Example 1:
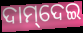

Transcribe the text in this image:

ଦାମ୍‌ଦେଇ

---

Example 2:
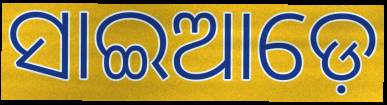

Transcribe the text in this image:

ସାଇଆଡ଼େ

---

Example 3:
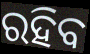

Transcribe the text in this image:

ରହିବ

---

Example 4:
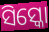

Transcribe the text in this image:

ସିସ୍କୋ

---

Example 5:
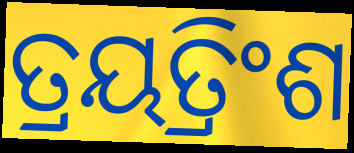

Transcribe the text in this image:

ତ୍ରୟତ୍ରିଂଶ